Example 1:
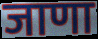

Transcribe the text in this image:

जाणा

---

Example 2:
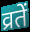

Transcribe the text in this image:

व्रतें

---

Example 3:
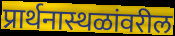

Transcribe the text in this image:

प्रार्थनास्थळांवरील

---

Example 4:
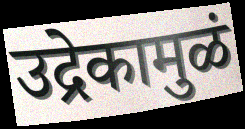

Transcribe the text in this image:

उद्रेकामुळं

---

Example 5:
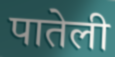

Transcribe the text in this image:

पातेली